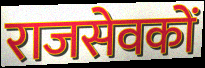
राजसेवकों